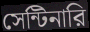
সেন্টিনারি